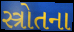
સ્ત્રોતના